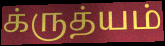
க்ருத்யம்